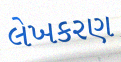
લેખકરણ